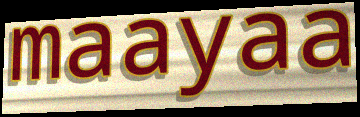
maayaa